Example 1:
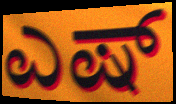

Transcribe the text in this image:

ಎಷ್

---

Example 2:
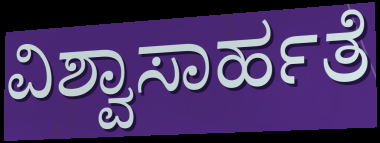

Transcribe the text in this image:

ವಿಶ್ವಾಸಾರ್ಹತೆ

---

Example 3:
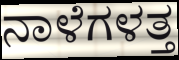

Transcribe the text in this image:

ನಾಳೆಗಳತ್ತ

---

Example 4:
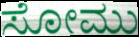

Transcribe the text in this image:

ಸೋಮು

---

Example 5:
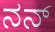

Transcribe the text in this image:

ನನ್